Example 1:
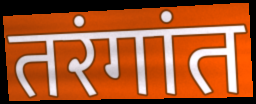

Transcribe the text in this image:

तरंगांत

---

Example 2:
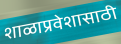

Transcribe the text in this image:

शाळाप्रवेशासाठी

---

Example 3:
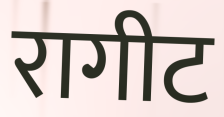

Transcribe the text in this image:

रागीट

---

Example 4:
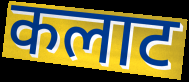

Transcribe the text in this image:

कलाट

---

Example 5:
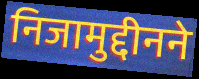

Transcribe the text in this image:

निजामुद्दीनने